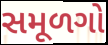
સમૂળગો